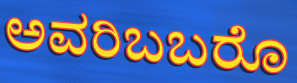
ಅವರಿಬಬರೊ